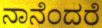
ನಾನೆಂದರೆ